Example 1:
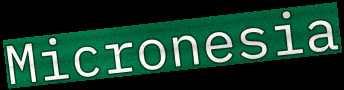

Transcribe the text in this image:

Micronesia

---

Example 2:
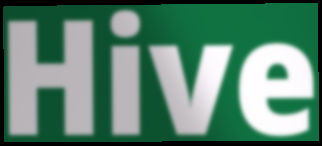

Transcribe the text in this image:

Hive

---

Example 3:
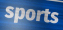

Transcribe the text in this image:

sports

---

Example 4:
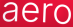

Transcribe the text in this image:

aero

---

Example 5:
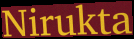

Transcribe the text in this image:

Nirukta